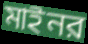
মাইনর